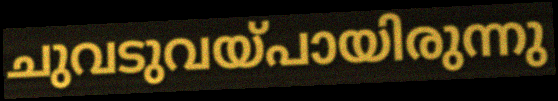
ചുവടുവയ്പായിരുന്നു